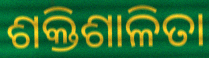
ଶକ୍ତିଶାଳିତା